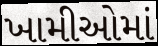
ખામીઓમાં